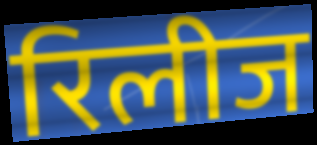
रिलीज